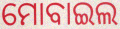
ମୋବାଇଲ